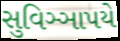
સુવિઞ્ઞાપયે